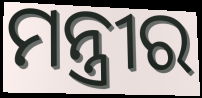
ମନ୍ତ୍ରୀର